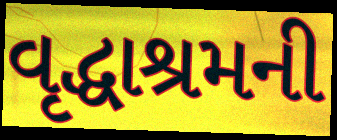
વૃદ્ધાશ્રમની